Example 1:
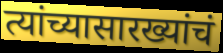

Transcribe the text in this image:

त्यांच्यासारख्यांचं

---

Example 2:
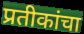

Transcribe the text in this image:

प्रतीकांचा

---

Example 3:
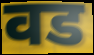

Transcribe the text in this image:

वड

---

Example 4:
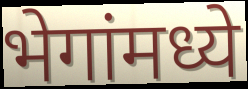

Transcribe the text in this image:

भेगांमध्ये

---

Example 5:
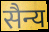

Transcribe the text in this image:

सैन्‍य